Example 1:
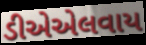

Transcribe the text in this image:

ડીએએલવાય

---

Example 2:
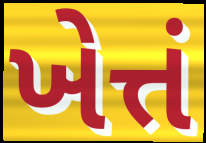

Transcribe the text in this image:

ખેત્તં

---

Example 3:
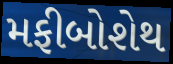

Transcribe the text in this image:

મફીબોશેથ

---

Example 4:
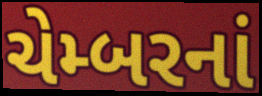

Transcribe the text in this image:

ચેમ્બરનાં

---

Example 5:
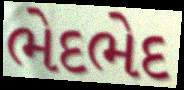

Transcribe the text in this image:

ભેદભેદ